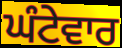
ਘੰਟੇਵਾਰ